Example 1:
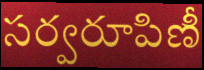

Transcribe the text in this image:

సర్వరూపిణీ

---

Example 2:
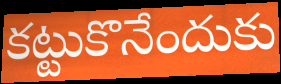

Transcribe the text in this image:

కట్టుకొనేందుకు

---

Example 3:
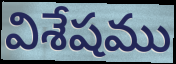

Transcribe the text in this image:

విశేషము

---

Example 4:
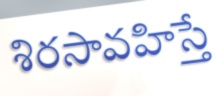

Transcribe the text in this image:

శిరసావహిస్తే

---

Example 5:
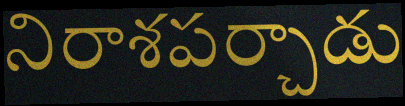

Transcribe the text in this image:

నిరాశపర్చాడు